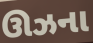
ઊઝના